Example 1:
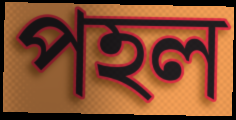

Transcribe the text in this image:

পহল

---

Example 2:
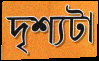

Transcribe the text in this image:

দৃশ্যটা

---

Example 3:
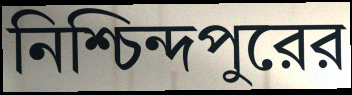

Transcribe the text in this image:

নিশ্চিন্দপুরের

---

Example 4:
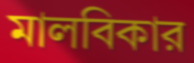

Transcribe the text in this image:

মালবিকার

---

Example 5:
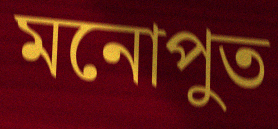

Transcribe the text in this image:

মনোপুত